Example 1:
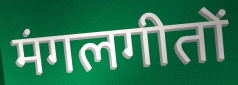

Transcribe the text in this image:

मंगलगीतों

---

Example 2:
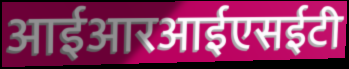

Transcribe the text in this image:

आईआरआईएसईटी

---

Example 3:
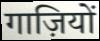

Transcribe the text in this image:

गाज़ियों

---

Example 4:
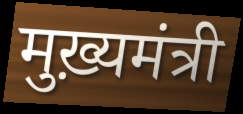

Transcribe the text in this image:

मुख़्यमंत्री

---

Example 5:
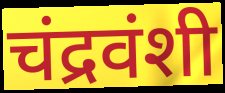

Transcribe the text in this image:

चंद्रवंशी